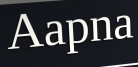
Aapna